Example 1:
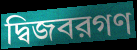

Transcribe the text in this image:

দ্বিজবরগণ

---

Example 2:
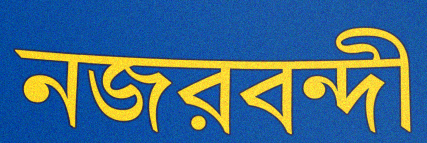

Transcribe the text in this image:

নজরবন্দী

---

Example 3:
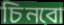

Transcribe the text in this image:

চিনবো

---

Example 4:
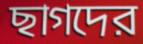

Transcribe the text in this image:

ছাগদের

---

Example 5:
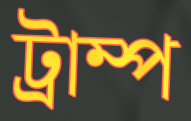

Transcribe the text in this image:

ট্রাম্প